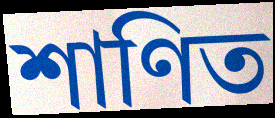
শাণিত